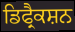
ਡਿਫ੍ਰੈਕਸ਼ਨ